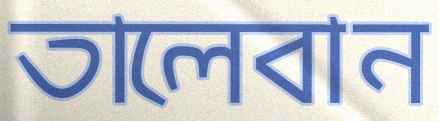
তালেবান